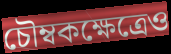
চৌম্বকক্ষেত্রেও